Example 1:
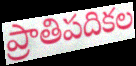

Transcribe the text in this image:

ప్రాతిపదికల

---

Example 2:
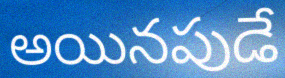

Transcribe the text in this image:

అయినపుడే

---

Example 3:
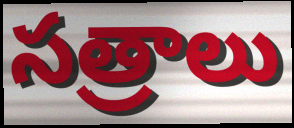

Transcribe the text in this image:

సత్రాలు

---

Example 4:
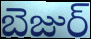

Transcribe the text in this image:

బెజుర్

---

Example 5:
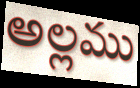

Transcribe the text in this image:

అల్లము